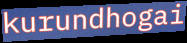
kurundhogai